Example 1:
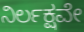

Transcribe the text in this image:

ನಿರ್ಲಕ್ಷವೇ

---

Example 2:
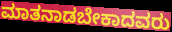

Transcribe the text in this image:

ಮಾತನಾಡಬೇಕಾದವರು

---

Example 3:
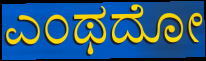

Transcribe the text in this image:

ಎಂಥದೋ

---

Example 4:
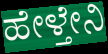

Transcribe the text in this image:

ಹೇಳ್ತೇನಿ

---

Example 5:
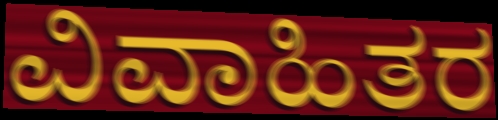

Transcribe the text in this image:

ವಿವಾಹಿತರ